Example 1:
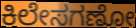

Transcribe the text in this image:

ಕಿಲೇಸಗಣೋ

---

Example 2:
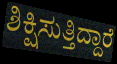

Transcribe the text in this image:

ಶಿಕ್ಷಿಸುತ್ತಿದ್ದಾರೆ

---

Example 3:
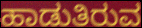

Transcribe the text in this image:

ಹಾಡುತಿರುವ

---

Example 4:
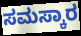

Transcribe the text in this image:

ಸಮಸ್ಕಾರ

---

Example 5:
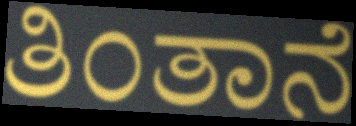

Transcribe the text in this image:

ತಿಂತಾನೆ